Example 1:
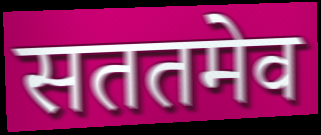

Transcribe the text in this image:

सततमेव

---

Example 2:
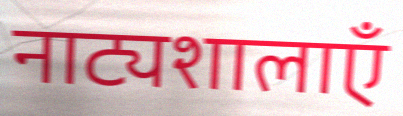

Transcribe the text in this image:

नाट्यशालाएँ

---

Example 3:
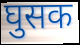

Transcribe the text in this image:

घुसक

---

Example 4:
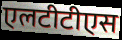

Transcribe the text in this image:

एलटीटीएस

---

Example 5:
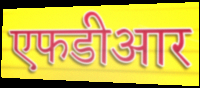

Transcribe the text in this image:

एफडीआर